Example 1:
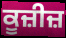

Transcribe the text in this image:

ਕੂਜ਼ੀਜ਼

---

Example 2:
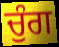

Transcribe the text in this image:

ਚੁੰਗ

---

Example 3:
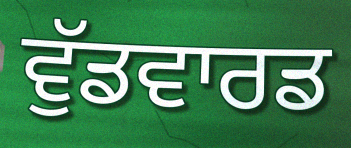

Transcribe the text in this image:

ਵੁੱਡਵਾਰਡ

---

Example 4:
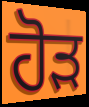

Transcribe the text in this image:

ਹੋੜ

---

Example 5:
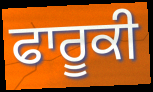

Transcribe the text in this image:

ਫਾਰੂਕੀ